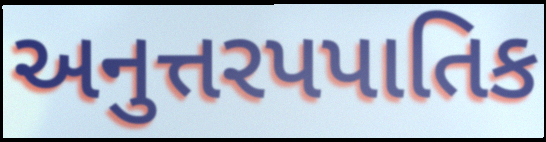
અનુત્તરપપાતિક